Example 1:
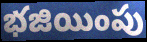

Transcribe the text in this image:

భజియింపు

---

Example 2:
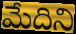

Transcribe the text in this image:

మేదిని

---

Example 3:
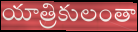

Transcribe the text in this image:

యాత్రికులంతా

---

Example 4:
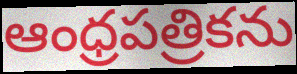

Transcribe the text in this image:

ఆంధ్రపత్రికను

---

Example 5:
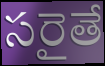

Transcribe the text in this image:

సరైతే